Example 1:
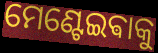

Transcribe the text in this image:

ମେଣ୍ଟେଇଵାକୁ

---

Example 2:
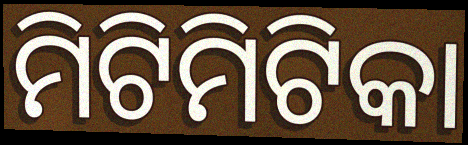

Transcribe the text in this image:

ମିଟିମିଟିକା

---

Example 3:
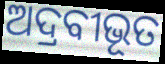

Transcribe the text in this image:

ଅଦ୍ରବୀଭୂତ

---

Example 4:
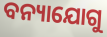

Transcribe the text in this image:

ବନ୍ୟାଯୋଗୁ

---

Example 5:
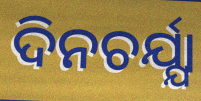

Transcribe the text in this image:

ଦିନଚର୍ଯ୍ଯା